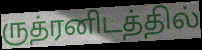
ருத்ரனிடத்தில்